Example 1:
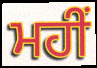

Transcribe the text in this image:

ਮਹੀਂ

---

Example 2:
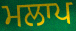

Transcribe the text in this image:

ਮਲਾਪ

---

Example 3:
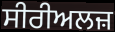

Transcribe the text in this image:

ਸੀਰੀਅਲਜ਼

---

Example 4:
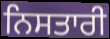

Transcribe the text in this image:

ਨਿਸਤਾਰੀ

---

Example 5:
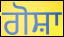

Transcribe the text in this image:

ਗੋਸ਼ਾ